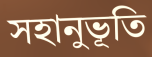
সহানুভূতি